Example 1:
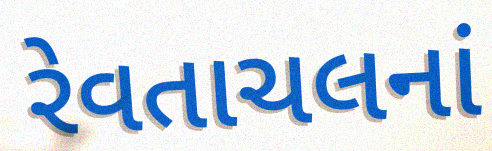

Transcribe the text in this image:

રેવતાચલનાં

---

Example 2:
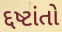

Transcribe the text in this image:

દ્દષ્ટાંતો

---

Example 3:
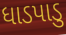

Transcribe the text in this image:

ધાડપાડુ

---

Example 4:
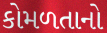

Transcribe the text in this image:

કોમળતાનો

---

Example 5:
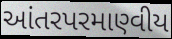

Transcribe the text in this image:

આંતરપરમાણ્વીય